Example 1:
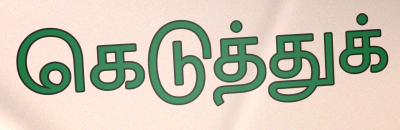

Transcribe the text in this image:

கெடுத்துக்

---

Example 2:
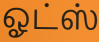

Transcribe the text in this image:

ஓட்ஸ்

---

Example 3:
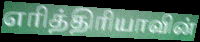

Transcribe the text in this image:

எரித்திரியாவின்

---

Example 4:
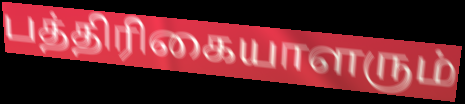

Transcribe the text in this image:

பத்திரிகையாளரும்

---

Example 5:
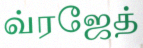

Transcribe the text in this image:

வ்ரஜேத்